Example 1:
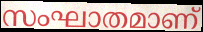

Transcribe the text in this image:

സംഘാതമാണ്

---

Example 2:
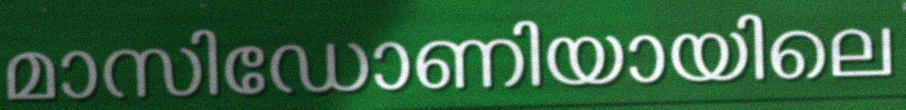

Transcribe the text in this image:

മാസിഡോണിയായിലെ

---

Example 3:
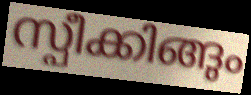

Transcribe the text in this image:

സ്പീക്കിങ്ങും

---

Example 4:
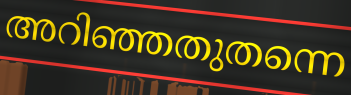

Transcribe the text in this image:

അറിഞ്ഞതുതന്നെ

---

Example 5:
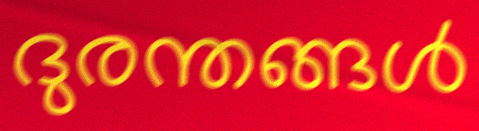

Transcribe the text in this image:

ദുരന്തങ്ങൾ